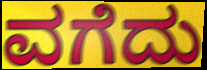
ವಗೆದು